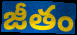
జీతం